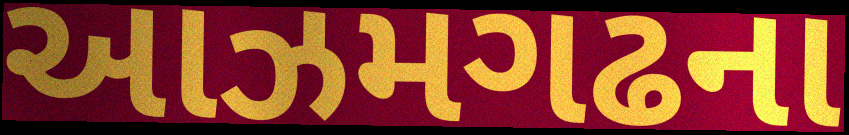
આઝમગઢના